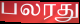
பலரது